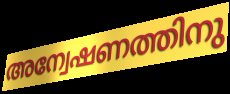
അന്വേഷണത്തിനു